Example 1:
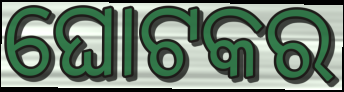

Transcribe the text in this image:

ଘୋଟକର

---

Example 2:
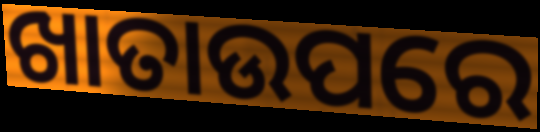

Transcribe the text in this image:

ଖାତାଉପରେ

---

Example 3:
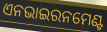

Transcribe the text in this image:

ଏନଭାଇରନମେଣ୍ଟ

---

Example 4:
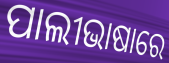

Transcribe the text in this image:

ପାଲୀଭାଷାରେ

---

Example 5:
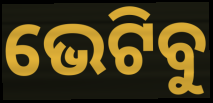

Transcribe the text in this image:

ଭେଟିବୁ